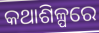
କଥାଶିଳ୍ପରେ